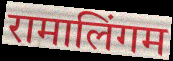
रामालिंगम